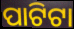
ପାଟିଟା